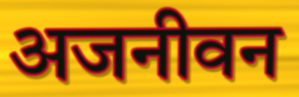
अजनीवन